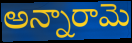
అన్నారామె